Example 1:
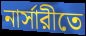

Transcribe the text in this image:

নার্সারীতে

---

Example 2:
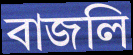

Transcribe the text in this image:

বাজলি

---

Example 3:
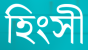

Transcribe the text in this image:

হিংসী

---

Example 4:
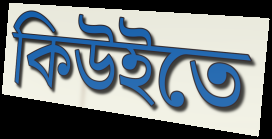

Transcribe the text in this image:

কিউইতে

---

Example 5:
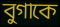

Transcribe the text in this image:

বুগাকে